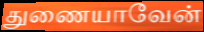
துணையாவேன்